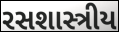
રસશાસ્ત્રીય